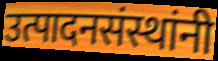
उत्पादनसंस्थांनी